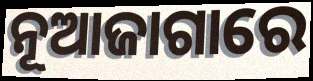
ନୂଆଜାଗାରେ